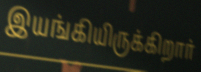
இயங்கியிருக்கிறார்